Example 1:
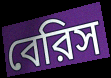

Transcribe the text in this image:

বেরিস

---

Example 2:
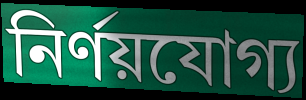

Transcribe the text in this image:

নির্ণয়যোগ্য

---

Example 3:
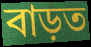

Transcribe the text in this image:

বাড়ত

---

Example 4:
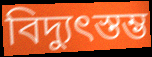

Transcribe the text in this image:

বিদ্যুৎস্তম্ভ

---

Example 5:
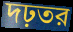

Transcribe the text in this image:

দঢ়তর